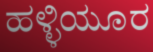
ಹಳ್ಳಿಯೂರ